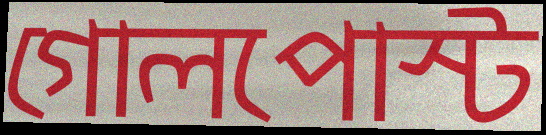
গোলপোস্ট